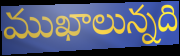
ముఖాలున్నది